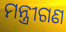
ମନ୍ତ୍ରୀଗଣ